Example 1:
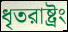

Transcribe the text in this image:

ধৃতরাষ্ট্রং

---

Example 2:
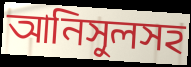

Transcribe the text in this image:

আনিসুলসহ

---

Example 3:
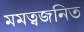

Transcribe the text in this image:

মমত্বজনিত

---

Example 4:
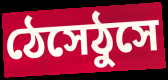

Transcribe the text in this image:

ঠেসেঠুসে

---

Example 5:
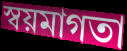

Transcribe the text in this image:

স্বয়মাগতা